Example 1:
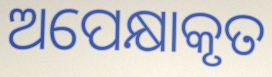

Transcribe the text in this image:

ଅପେକ୍ଷାକୃତ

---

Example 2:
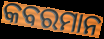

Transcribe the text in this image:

କବରମାନ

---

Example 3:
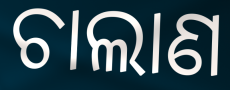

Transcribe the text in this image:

ଚାଲାଣ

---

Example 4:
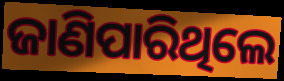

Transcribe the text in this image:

ଜାଣିପାରିଥିଲେ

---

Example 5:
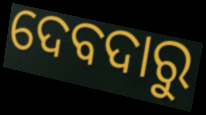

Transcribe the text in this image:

ଦେବଦାରୁ